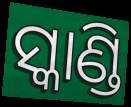
ସ୍କାଣ୍ଡି